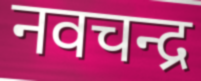
नवचन्द्र